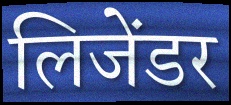
लिजेंडर